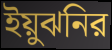
ইয়ুঝনির